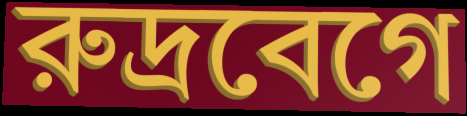
রুদ্রবেগে